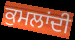
ਕੁਮਲਾਂਦੀ